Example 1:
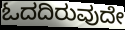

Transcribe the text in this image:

ಓದದಿರುವುದೇ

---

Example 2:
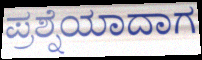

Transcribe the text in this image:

ಪ್ರಶ್ನೆಯಾದಾಗ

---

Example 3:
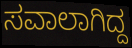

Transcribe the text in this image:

ಸವಾಲಾಗಿದ್ದ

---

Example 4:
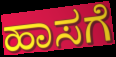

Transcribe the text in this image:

ಹಾಸಗೆ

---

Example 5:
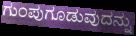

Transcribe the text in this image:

ಗುಂಪುಗೂಡುವುದನ್ನು